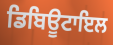
ਡਿਬਿਊਟਾਇਲ